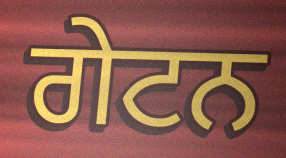
ਗੇਟਨ